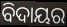
ବିଦାୟର